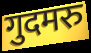
गुदमरु